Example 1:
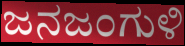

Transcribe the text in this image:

ಜನಜಂಗುಳಿ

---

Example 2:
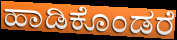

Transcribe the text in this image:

ಹಾಡಿಕೊಂಡರೆ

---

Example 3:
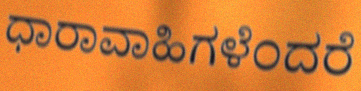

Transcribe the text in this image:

ಧಾರಾವಾಹಿಗಳೆಂದರೆ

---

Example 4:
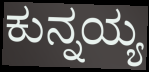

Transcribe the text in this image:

ಕುನ್ನಯ್ಯ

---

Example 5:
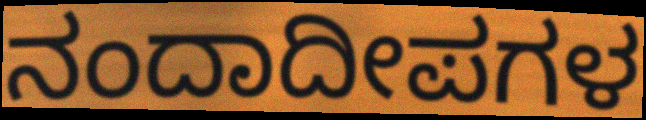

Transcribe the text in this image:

ನಂದಾದೀಪಗಳ